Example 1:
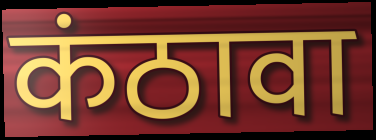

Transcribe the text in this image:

कंठावा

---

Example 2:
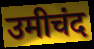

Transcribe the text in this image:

उमीचंद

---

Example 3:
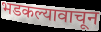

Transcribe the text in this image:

भडकल्यावाचून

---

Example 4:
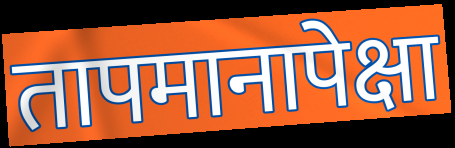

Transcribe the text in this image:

तापमानापेक्षा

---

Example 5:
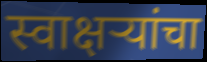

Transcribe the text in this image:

स्वाक्षऱ्यांचा